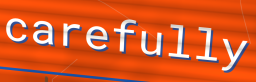
carefully